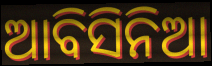
ଆବିସିନିଆ